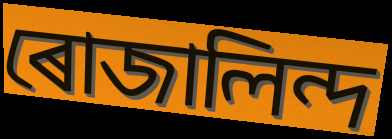
ৰোজালিন্দ